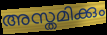
അസ്തമിക്കും